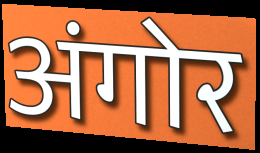
अंगोर